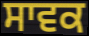
ਸਾਵਕ